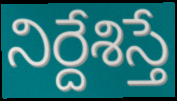
నిర్దేశిస్తే